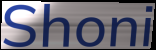
Shoni